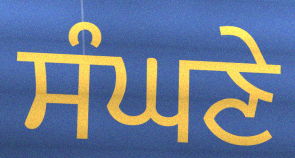
ਸੰਘਣੇ